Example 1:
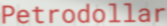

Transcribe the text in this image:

Petrodollar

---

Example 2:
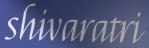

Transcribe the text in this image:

shivaratri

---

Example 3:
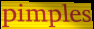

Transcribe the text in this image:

pimples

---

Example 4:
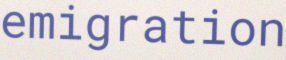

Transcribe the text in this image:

emigration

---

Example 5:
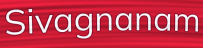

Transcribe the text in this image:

Sivagnanam